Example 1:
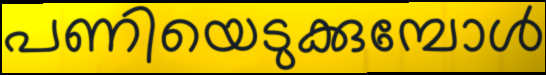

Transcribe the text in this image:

പണിയെടുക്കുമ്പോൾ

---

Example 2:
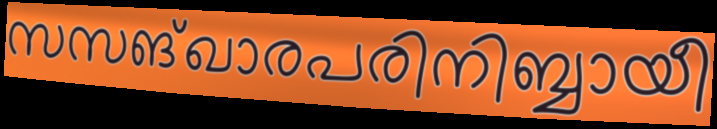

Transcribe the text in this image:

സസങ്ഖാരപരിനിബ്ബായീ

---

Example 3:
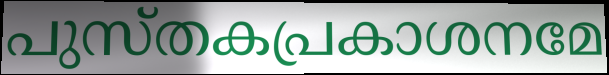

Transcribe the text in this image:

പുസ്തകപ്രകാശനമേ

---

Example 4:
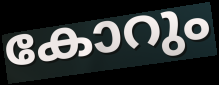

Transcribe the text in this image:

കോറും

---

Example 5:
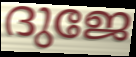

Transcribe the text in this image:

ദുജേ